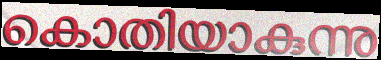
കൊതിയാകുന്നു